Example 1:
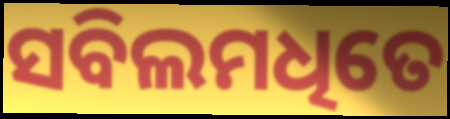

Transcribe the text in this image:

ସବିଲମଧିତେ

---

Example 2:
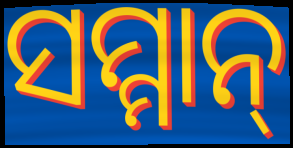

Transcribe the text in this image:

ସମ୍ମାନ୍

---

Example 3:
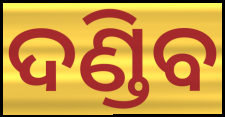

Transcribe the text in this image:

ଦଣ୍ଡିବ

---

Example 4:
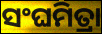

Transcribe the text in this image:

ସଂଘମିତ୍ରା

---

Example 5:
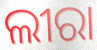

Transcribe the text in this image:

ଲୀରା